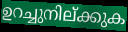
ഉറച്ചുനില്ക്കുക